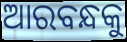
ଆରବନ୍ଧକୁ